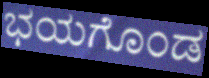
ಭಯಗೊಂಡ